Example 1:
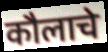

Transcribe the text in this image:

कौलाचे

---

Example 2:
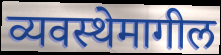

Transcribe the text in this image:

व्यवस्थेमागील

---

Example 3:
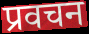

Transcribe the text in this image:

प्रवचन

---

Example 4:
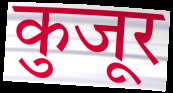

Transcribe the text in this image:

कुजूर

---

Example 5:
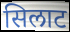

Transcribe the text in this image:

सिलाट